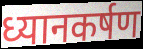
ध्यानकर्षण